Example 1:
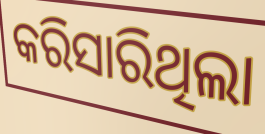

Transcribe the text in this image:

କରିସାରିଥିଲା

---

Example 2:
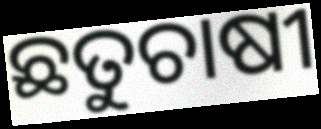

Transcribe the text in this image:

ଛତୁଚାଷୀ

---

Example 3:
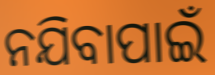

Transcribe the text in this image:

ନଯିବାପାଇଁ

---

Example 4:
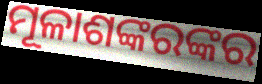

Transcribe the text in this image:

ମୂଳାଶଙ୍କରଙ୍କର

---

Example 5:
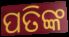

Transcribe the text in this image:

ପତିଙ୍କ